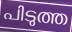
പിടുത്ത